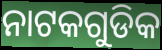
ନାଟକଗୁଡିକ